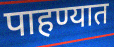
पाहण्यात